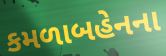
કમળાબહેનના